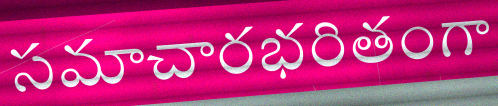
సమాచారభరితంగా